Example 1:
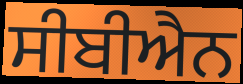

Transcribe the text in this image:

ਸੀਬੀਐਨ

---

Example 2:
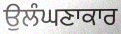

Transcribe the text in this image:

ਉਲੰਘਣਾਕਾਰ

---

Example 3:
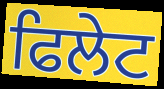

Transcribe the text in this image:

ਫਿਲੇਟ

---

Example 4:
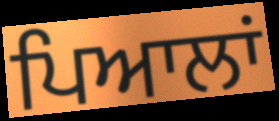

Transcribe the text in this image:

ਪਿਆਲਾਂ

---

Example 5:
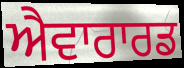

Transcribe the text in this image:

ਐਵਾਰਾਰਡ